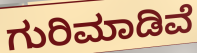
ಗುರಿಮಾಡಿವೆ